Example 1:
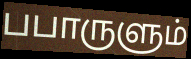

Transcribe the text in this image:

பபாருளும்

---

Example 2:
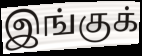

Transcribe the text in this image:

இங்குக்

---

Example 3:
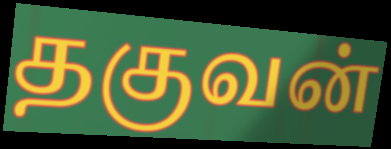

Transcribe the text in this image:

தகுவன்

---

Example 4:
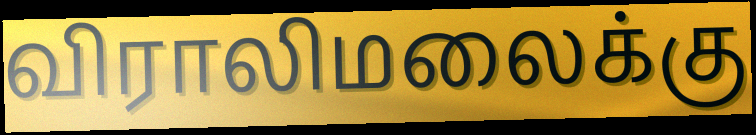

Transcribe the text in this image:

விராலிமலைக்கு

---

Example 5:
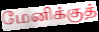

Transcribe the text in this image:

மேனிக்குத்